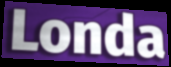
Londa